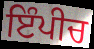
ਇੰਪੀਚ